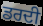
ਡਰਦੀ